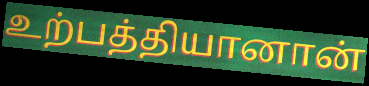
உற்பத்தியானான்